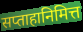
सप्ताहानिमित्त